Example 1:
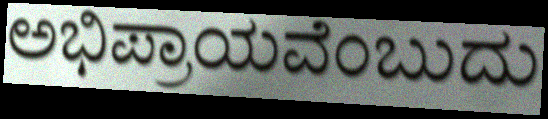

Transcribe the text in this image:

ಅಭಿಪ್ರಾಯವೆಂಬುದು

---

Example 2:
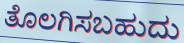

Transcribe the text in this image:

ತೊಲಗಿಸಬಹುದು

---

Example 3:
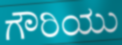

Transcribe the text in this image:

ಗೌರಿಯು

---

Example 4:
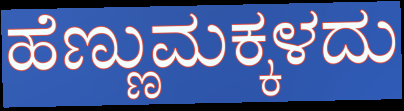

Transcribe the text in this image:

ಹೆಣ್ಣುಮಕ್ಕಳದು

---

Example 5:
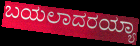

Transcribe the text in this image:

ಬಯಲಾದರಯ್ಯಾ